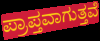
ಪ್ರಾಪ್ತವಾಗುತ್ತವೆ